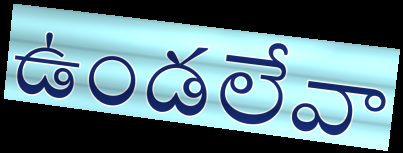
ఉండలేవా